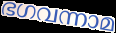
ഭഗവന്നാമ